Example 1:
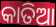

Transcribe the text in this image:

କାତିଆ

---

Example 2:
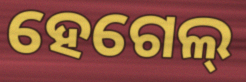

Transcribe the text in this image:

ହେଗେଲ୍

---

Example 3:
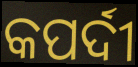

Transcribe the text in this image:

କପର୍ଦୀ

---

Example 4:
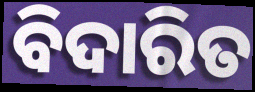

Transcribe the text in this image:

ବିଦାରିତ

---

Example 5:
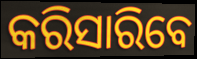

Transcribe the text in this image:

କରିସାରିବେ